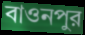
বাওনপুর